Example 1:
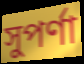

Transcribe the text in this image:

সুপর্ণা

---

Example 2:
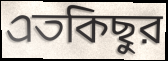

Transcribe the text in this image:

এতকিছুর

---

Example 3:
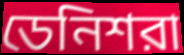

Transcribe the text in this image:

ডেনিশরা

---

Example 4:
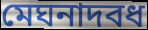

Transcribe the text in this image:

মেঘনাদবধ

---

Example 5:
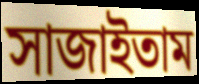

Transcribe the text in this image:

সাজাইতাম